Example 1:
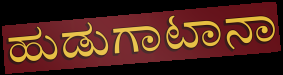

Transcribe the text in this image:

ಹುಡುಗಾಟಾನಾ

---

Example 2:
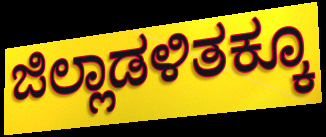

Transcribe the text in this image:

ಜಿಲ್ಲಾಡಳಿತಕ್ಕೂ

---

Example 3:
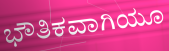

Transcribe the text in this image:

ಭೌತಿಕವಾಗಿಯೂ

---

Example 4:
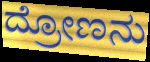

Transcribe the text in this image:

ದ್ರೋಣನು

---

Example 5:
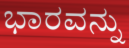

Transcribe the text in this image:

ಭಾರವನ್ನು